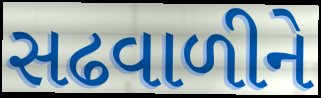
સઢવાળીને